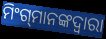
ମିଂଗ୍‍ମାନଙ୍କଦ୍ୱାରା